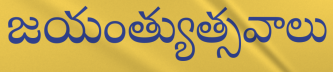
జయంత్యుత్సవాలు